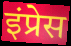
इंप्रेस